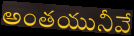
అంతయునీవే